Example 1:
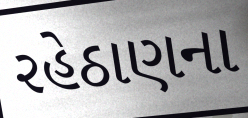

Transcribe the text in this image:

રહેઠાણના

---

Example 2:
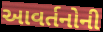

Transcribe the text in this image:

આવર્તનોની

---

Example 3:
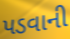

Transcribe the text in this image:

પડવાની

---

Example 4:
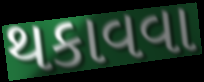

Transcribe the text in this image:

થકાવવા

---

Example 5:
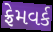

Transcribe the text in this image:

ફ્રેમવર્ક